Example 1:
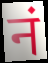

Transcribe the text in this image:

नं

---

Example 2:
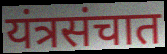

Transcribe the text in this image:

यंत्रसंचात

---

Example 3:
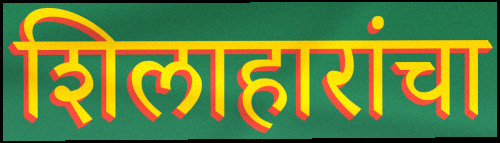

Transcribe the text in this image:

शिलाहारांचा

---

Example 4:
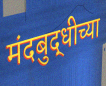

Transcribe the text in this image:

मंदबुद्धीच्या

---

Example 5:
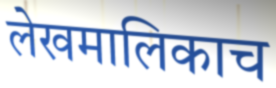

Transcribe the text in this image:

लेखमालिकाच